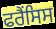
ਫਰੈਂਸਿਸ